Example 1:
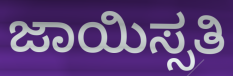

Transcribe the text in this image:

ಜಾಯಿಸ್ಸತಿ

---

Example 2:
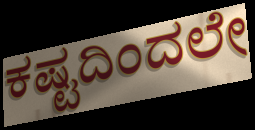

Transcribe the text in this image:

ಕಷ್ಟದಿಂದಲೇ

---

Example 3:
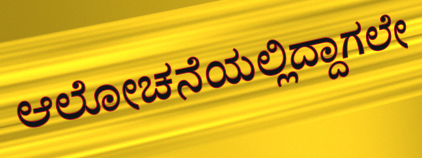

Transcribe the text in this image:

ಆಲೋಚನೆಯಲ್ಲಿದ್ದಾಗಲೇ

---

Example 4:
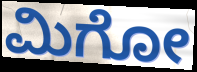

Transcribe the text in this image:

ಮಿಗೋ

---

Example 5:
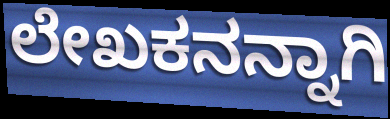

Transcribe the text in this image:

ಲೇಖಕನನ್ನಾಗಿ